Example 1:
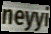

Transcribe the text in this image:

neyyi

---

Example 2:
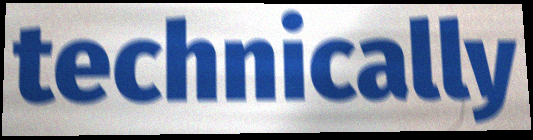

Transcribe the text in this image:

technically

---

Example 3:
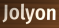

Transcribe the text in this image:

Jolyon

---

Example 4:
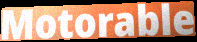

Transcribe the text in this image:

Motorable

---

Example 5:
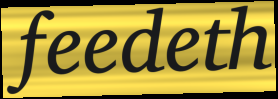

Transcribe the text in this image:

feedeth